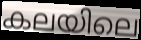
കലയിലെ